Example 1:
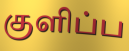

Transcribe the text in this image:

குளிப்ப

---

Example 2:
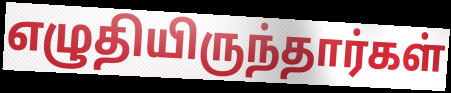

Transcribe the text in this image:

எழுதியிருந்தார்கள்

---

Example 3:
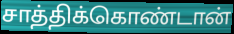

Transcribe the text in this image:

சாத்திக்கொண்டான்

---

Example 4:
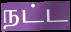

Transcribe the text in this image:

நட்ட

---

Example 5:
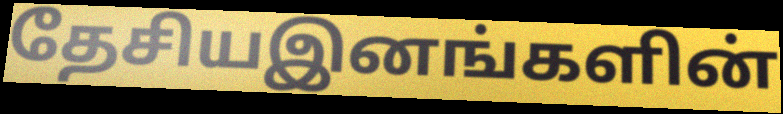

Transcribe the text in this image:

தேசியஇனங்களின்